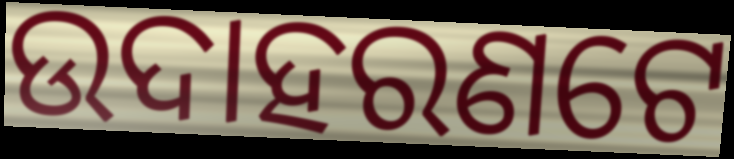
ଉଦାହରଣଟେ